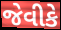
જેવીકે